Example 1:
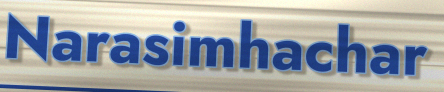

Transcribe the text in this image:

Narasimhachar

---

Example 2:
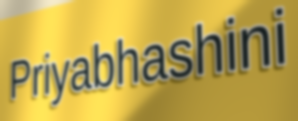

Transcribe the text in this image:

Priyabhashini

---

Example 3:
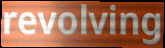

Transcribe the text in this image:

revolving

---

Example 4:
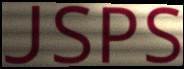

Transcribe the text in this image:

JSPS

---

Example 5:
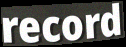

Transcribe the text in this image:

record